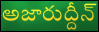
అజారుద్దీన్